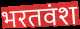
भरतवंश